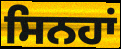
ਸਿਨਹਾਂ